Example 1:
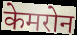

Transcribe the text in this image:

केमरोन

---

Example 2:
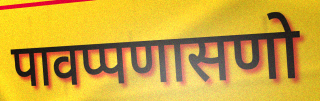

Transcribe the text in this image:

पावप्पणासणो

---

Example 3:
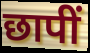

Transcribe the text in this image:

छापीं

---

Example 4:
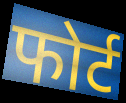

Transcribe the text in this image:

फोर्ट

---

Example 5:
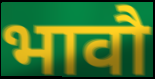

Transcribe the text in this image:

भावौ